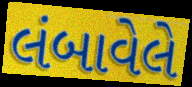
લંબાવેલે